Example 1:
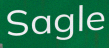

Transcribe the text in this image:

Sagle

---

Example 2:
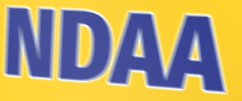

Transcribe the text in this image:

NDAA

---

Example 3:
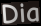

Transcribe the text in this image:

Dia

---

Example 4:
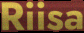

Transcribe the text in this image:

Riisa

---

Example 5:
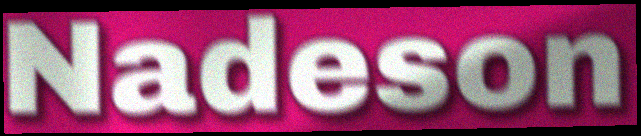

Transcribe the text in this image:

Nadeson